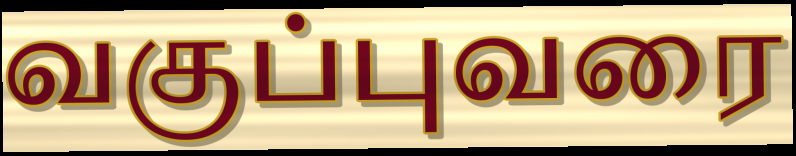
வகுப்புவரை